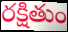
రక్షితుం